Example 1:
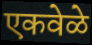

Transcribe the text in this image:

एकवेळे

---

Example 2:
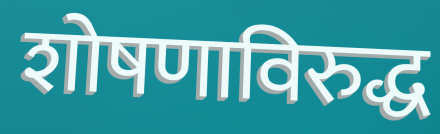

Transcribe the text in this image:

शोषणाविरुद्ध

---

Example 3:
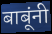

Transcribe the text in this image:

बाबूंनी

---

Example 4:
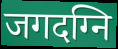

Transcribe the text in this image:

जगदग्नि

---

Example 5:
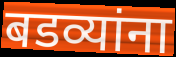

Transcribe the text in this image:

बडव्यांना